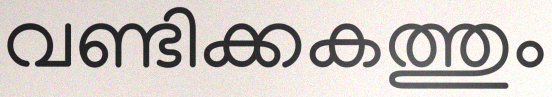
വണ്ടിക്കകത്തും